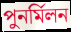
পুনর্মিলন